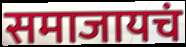
समाजायचं